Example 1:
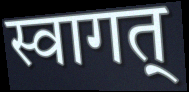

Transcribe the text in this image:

स्वागत्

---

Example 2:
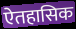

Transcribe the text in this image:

ऐतहासिक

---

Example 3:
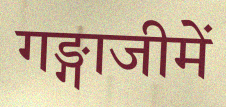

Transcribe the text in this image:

गङ्गाजीमें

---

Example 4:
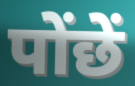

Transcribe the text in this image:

पोंछें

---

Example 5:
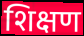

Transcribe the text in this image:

शिक्षण